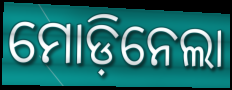
ମୋଡ଼ିନେଲା